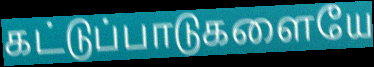
கட்டுப்பாடுகளையே